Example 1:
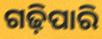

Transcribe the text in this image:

ଗଢ଼ିପାରି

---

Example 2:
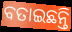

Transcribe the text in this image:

ବତାଇଛନ୍ତି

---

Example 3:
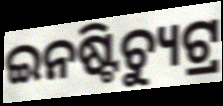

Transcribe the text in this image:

ଇନଷ୍ଟିଚ୍ୟୁଟ୍ର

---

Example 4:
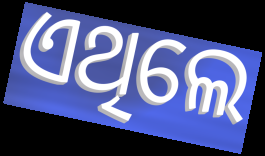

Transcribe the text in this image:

ଏଥିଲେ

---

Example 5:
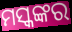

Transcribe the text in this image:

ମସ୍କଙ୍କର